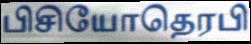
பிசியோதெரபி